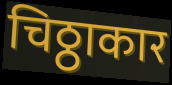
चिठ्ठाकार